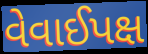
વેવાઈપક્ષ